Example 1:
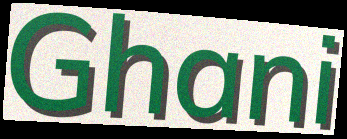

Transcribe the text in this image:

Ghani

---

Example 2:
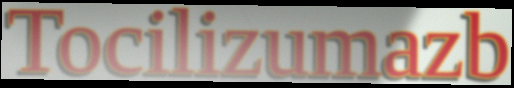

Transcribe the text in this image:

Tocilizumazb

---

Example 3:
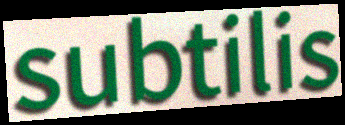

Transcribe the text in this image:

subtilis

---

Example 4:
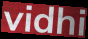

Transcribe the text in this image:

vidhi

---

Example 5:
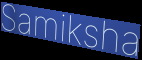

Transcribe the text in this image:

Samiksha